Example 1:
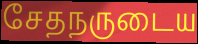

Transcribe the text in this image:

சேதநருடைய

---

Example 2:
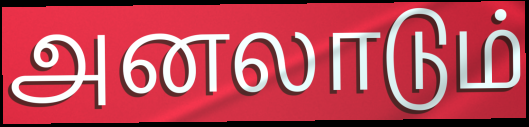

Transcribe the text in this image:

அனலாடும்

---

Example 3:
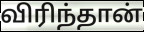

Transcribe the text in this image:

விரிந்தான்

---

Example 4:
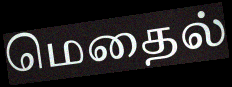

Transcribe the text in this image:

மெதைல்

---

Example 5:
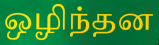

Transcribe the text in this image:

ஒழிந்தன